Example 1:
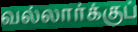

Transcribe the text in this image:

வல்லார்க்குப்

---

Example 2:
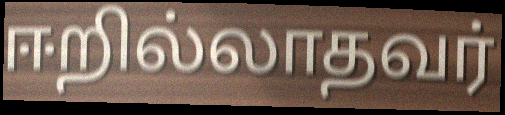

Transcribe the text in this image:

ஈறில்லாதவர்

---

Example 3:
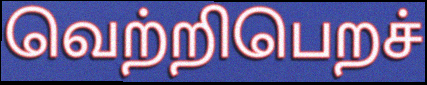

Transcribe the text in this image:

வெற்றிபெறச்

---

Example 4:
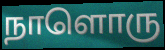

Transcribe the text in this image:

நாளொரு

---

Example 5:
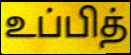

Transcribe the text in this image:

உப்பித்